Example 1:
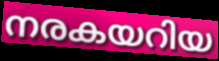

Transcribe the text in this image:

നരകയറിയ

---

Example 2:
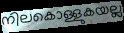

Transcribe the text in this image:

നിലകൊള്ളുകയല്ല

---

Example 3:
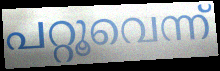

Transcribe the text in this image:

പറ്റൂവെന്ന്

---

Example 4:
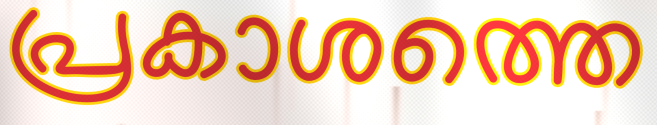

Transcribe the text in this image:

പ്രകാശത്തെ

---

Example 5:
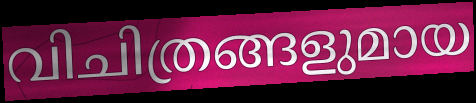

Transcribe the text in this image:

വിചിത്രങ്ങളുമായ